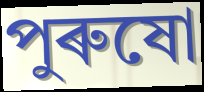
পুৰুষো